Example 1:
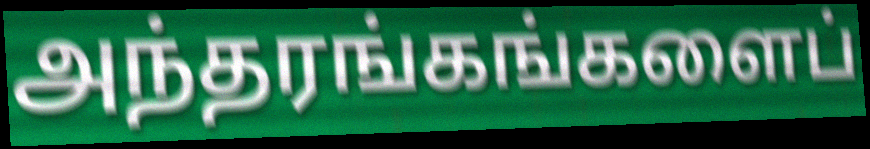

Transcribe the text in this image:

அந்தரங்கங்களைப்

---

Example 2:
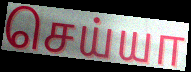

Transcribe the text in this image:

செய்யா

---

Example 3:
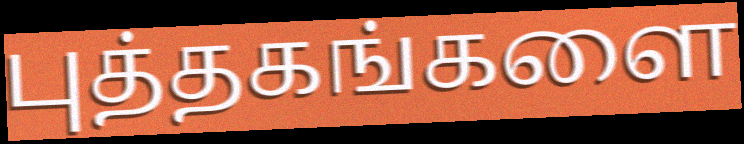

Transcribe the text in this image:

புத்தகங்களை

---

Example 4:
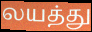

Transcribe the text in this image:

லயத்து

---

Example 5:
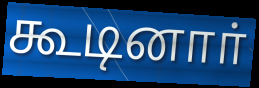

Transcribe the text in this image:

கூடினார்